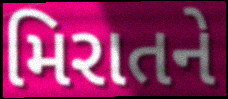
મિરાતને